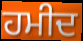
ਹਮੀਦ